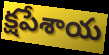
క్షపేశాయ